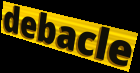
debacle